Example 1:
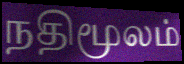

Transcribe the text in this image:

நதிமூலம்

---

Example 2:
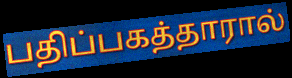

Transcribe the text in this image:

பதிப்பகத்தாரால்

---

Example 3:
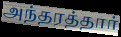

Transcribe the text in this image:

அந்தரத்தார்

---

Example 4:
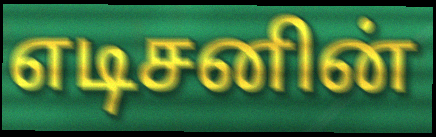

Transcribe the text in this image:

எடிசனின்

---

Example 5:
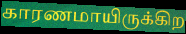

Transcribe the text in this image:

காரணமாயிருக்கிற